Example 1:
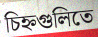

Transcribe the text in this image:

চিহ্নগুলিতে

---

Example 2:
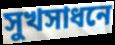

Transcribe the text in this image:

সুখসাধনে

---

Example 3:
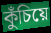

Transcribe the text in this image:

কুঁচিয়ে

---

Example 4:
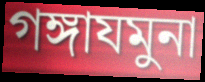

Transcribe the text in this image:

গঙ্গাযমুনা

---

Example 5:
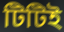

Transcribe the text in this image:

টিটিই